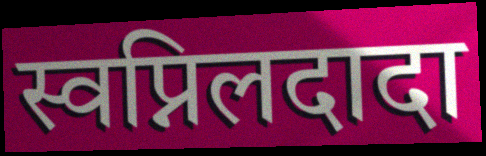
स्वप्निलदादा